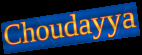
Choudayya